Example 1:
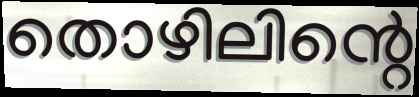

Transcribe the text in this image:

തൊഴിലിന്റെ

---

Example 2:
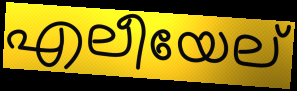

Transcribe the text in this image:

എലീയേല്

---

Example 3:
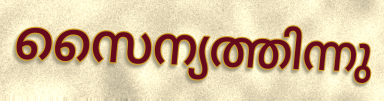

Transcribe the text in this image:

സൈന്യത്തിന്നു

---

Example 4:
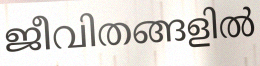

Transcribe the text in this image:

ജീവിതങ്ങളിൽ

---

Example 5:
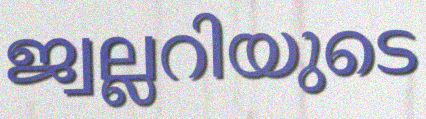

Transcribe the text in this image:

ജ്വല്ലറിയുടെ